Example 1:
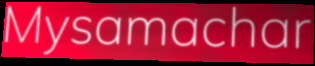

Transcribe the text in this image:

Mysamachar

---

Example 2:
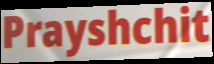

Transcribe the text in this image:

Prayshchit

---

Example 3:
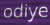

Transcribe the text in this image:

odiye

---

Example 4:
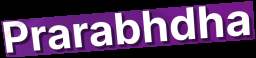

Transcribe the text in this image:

Prarabhdha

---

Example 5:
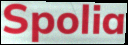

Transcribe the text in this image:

Spolia